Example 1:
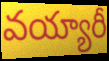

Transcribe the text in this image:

వయ్యారీ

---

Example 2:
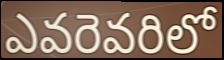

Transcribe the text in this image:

ఎవరెవరిలో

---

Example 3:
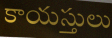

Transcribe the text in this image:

కాయస్తులు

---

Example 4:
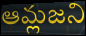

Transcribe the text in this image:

ఆమ్లజని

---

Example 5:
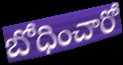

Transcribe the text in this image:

బోధించారో